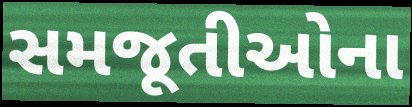
સમજૂતીઓના